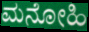
ಮನೋಹಿ